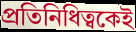
প্রতিনিধিত্বকেই